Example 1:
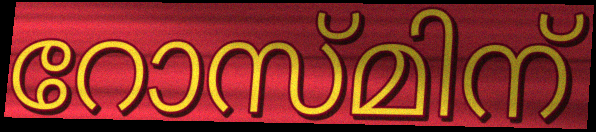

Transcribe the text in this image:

റോസ്മിന്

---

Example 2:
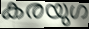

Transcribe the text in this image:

കരയുഗ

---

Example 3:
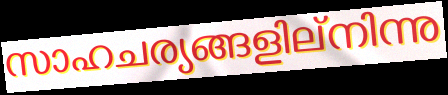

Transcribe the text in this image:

സാഹചര്യങ്ങളില്നിന്നു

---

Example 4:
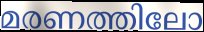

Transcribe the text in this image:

മരണത്തിലോ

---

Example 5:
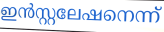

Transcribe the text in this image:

ഇൻസ്റ്റലേഷനെന്ന്